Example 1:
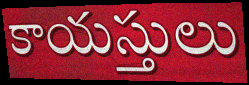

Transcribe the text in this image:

కాయస్తులు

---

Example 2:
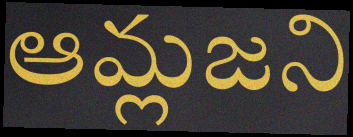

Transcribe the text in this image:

ఆమ్లజని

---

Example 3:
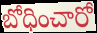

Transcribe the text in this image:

బోధించారో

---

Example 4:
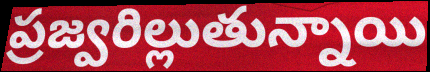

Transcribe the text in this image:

ప్రజ్వరిల్లుతున్నాయి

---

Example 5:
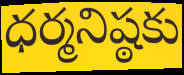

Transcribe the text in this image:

ధర్మనిష్ఠకు